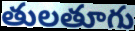
తులతూగు